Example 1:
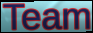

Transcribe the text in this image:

Team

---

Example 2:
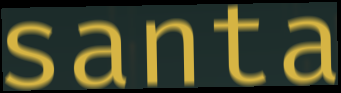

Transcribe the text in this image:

santa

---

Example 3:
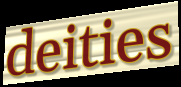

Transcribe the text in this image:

deities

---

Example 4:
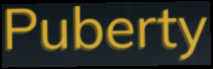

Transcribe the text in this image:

Puberty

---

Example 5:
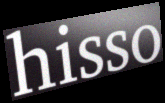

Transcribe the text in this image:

hisso